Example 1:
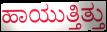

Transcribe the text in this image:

ಹಾಯುತ್ತಿತ್ತು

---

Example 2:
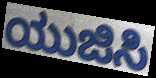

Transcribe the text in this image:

ಯುಜಿಸಿ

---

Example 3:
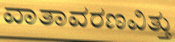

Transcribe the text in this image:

ವಾತಾವರಣವಿತ್ತು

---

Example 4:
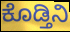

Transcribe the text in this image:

ಕೊಡ್ತಿನಿ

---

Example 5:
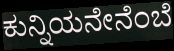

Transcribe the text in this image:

ಕುನ್ನಿಯನೇನೆಂಬೆ